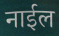
नाईल